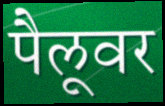
पैलूवर